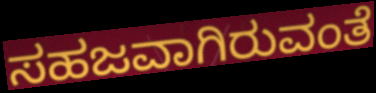
ಸಹಜವಾಗಿರುವಂತೆ